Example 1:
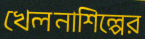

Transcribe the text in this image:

খেলনাশিল্পের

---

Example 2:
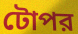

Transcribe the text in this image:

টোপর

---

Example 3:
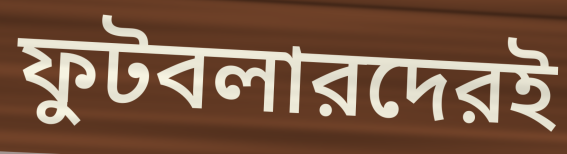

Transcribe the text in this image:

ফুটবলারদেরই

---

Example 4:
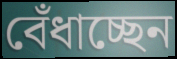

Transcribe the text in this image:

বেঁধাচ্ছেন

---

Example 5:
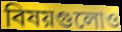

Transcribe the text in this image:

বিষয়গুলোও